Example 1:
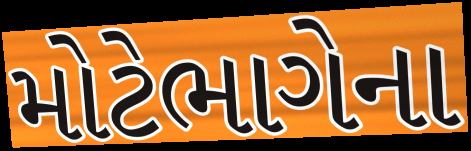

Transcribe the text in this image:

મોટેભાગેના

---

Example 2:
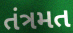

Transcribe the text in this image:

તંત્રમત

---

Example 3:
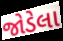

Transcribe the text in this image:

જોડેલા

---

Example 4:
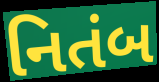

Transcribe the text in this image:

નિતંબ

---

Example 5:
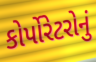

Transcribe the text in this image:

કોર્પોરેટરોનું